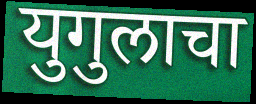
युगुलाचा